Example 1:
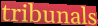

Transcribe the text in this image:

tribunals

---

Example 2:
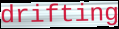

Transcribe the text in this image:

drifting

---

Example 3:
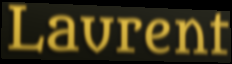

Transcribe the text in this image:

Laurent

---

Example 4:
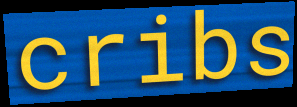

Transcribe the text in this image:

cribs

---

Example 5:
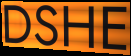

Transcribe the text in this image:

DSHE